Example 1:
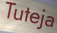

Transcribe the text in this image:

Tuteja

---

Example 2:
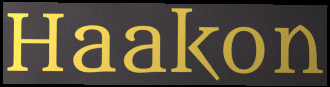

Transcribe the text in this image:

Haakon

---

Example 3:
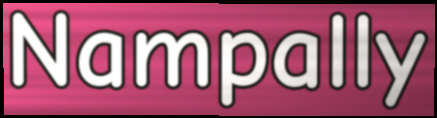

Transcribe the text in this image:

Nampally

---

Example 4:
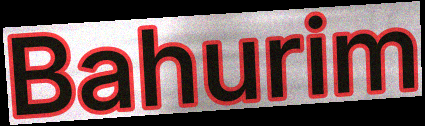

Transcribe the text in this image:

Bahurim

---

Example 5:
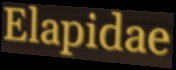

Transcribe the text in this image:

Elapidae